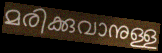
മരിക്കുവാനുള്ള